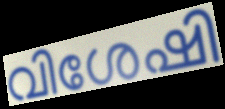
വിശേഷി